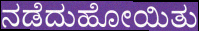
ನಡೆದುಹೋಯಿತು